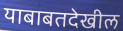
याबाबतदेखील